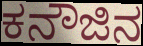
ಕನೌಜಿನ